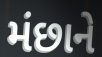
મંછાને